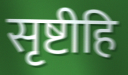
सृष्टीहि